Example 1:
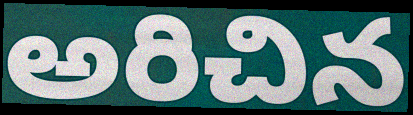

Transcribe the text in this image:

అరిచిన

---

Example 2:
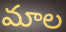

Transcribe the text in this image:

మాల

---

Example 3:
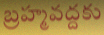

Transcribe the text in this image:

బ్రహ్మవద్దకు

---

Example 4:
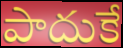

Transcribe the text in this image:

పాదుకే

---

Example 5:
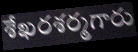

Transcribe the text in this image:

శేఖరశర్మగారు